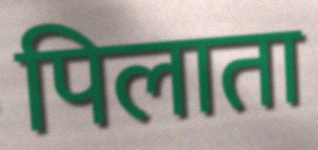
पिलाता